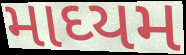
માઘ્યમ